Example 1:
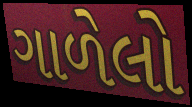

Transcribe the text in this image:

ગાળેલો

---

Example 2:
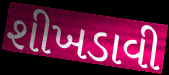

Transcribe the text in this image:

શીખડાવી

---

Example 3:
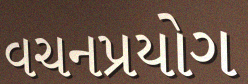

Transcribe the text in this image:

વચનપ્રયોગ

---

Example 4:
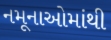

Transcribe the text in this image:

નમૂનાઓમાંથી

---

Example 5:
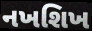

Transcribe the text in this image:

નખશિખ